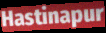
Hastinapur